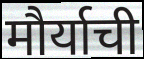
मौर्याची